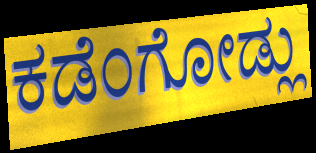
ಕಡೆಂಗೋಡ್ಲು